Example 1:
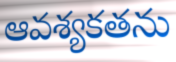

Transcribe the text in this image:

ఆవశ్యకతను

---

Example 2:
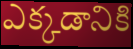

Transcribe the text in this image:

ఎక్కడానికి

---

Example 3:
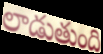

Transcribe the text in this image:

లాడుతుంది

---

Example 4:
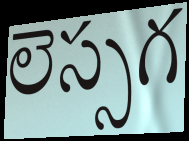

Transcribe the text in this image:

లెస్సగ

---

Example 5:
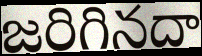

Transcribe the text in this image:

జరిగినదా